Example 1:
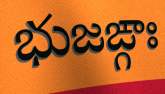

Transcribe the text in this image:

భుజఙ్గాః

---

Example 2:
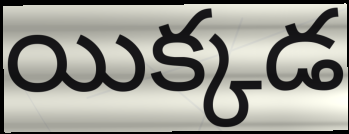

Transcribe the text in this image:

యిక్కడ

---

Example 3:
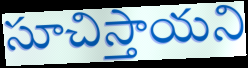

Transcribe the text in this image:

సూచిస్తాయని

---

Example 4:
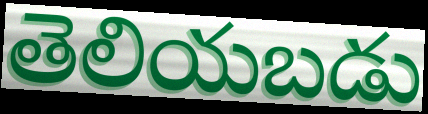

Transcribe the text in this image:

తెలియబడు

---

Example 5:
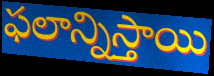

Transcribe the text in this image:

ఫలాన్నిస్తాయి